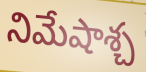
నిమేషాశ్చ